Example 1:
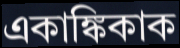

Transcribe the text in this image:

একাঙ্কিকাক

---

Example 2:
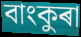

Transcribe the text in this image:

বাংকুৰা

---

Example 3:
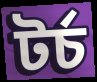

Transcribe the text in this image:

টৰ্চ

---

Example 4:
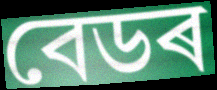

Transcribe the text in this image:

বেডৰ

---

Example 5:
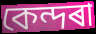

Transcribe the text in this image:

কেন্দৰা